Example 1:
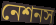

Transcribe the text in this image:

নেশনস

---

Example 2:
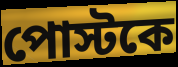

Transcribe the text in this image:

পোস্টকে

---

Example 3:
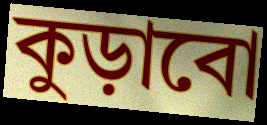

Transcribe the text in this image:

কুড়াবো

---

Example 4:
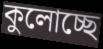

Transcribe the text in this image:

কুলোচ্ছে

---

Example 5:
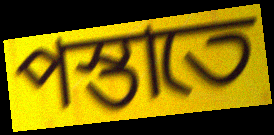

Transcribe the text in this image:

পস্তাতে